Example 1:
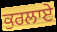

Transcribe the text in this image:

ਕੁਰਲਾਏ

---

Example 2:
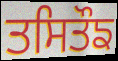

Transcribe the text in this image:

ਤਸਿਤੌਙ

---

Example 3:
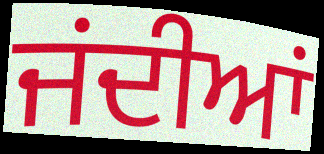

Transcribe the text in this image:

ਜਂਦੀਆਂ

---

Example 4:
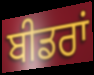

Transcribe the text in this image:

ਬੀਡਰਾਂ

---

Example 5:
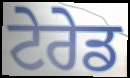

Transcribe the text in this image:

ਟੇਰੇਡ